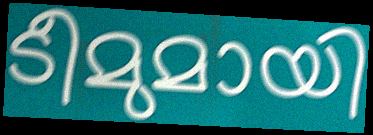
ടീമുമായി